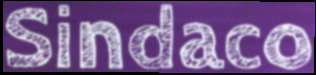
Sindaco